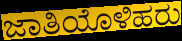
ಜಾತಿಯೊಳಿಹರು